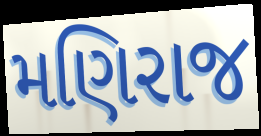
મણિરાજ